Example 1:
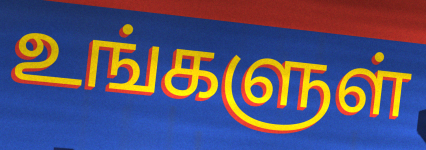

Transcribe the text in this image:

உங்களுள்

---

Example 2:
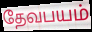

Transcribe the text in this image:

தேவபயம்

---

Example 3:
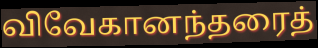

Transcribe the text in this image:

விவேகானந்தரைத்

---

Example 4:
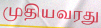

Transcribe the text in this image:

முதியவரது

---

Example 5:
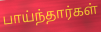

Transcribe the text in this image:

பாய்ந்தார்கள்